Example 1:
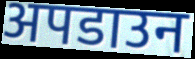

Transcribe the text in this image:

अपडाउन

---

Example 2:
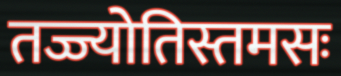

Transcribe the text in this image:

तज्ज्योतिस्तमसः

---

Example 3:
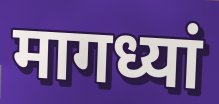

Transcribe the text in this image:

मागध्यां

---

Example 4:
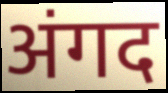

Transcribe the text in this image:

अंगद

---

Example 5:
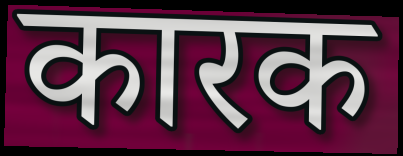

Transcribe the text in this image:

कारक